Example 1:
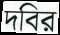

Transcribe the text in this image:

দবির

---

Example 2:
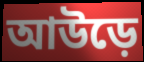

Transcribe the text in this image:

আউড়ে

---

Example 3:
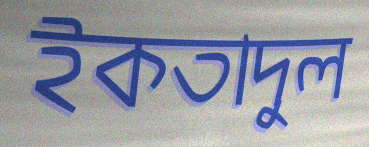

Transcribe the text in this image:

ইকতাদুল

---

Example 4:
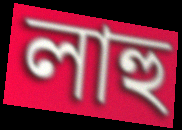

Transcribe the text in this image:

লাহু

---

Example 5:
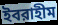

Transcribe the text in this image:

ইবরাহীম